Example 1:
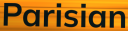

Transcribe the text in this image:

Parisian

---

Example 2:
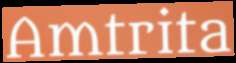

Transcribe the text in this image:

Amtrita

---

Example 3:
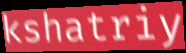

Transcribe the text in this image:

kshatriy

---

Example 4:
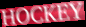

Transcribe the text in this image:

HOCKEY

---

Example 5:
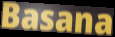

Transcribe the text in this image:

Basana